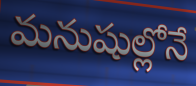
మనుషుల్లోనే